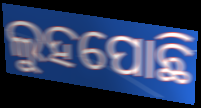
ଲୁହପୋଛି